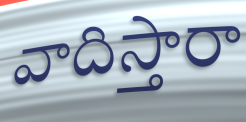
వాదిస్తారా